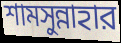
শামসুন্নাহার